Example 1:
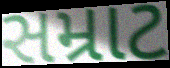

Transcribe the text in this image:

સમ્રાટ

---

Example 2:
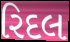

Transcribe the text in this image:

રિદલ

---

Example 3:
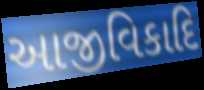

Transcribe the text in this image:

આજીવિકાદિ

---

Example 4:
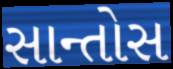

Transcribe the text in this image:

સાન્તોસ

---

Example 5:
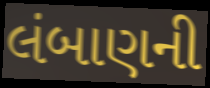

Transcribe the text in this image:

લંબાણની